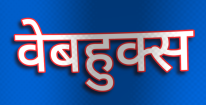
वेबहुक्स